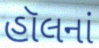
હૉલનાં